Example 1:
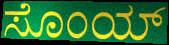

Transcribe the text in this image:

ಸೊಂಯ್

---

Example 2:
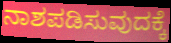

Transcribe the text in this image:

ನಾಶಪಡಿಸುವುದಕ್ಕೆ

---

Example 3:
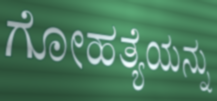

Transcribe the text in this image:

ಗೋಹತ್ಯೆಯನ್ನು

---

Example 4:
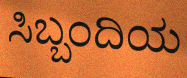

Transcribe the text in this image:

ಸಿಬ್ಬಂದಿಯ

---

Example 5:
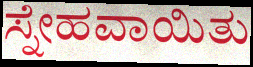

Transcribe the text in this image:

ಸ್ನೇಹವಾಯಿತು